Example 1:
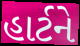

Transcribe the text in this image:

હાર્ટને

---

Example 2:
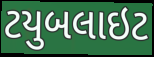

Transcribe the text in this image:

ટયુબલાઇટ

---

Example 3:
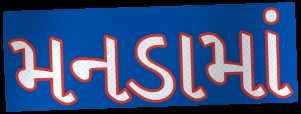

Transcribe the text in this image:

મનડામાં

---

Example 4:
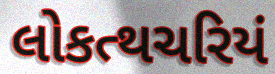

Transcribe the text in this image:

લોકત્થચરિયં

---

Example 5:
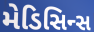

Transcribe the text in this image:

મેડિસિન્સ